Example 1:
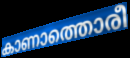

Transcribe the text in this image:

കാണാത്തൊരീ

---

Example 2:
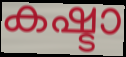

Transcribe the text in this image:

കഷ്ടാ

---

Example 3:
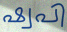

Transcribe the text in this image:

ഷ്വപി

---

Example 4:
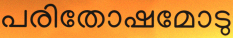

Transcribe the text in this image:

പരിതോഷമോടു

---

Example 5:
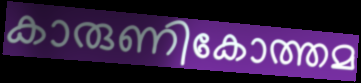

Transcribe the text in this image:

കാരുണികോത്തമ